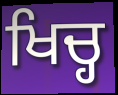
ਖਿਚ੍ਹ